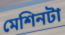
মেশিনটা